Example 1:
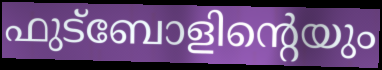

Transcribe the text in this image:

ഫുട്ബോളിന്റെയും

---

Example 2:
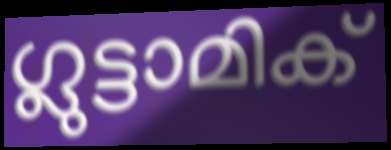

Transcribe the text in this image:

ഗ്ലുട്ടാമിക്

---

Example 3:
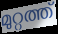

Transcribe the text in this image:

മുറ്റത്ത്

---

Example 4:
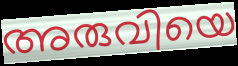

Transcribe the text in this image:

അരുവിയെ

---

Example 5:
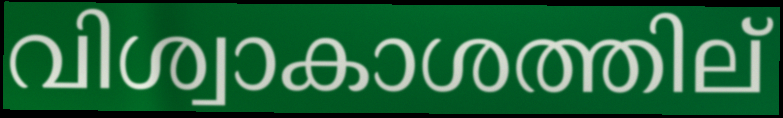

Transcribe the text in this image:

വിശ്വാകാശത്തില്